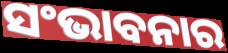
ସଂଭାବନାର